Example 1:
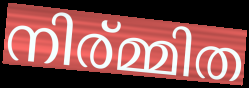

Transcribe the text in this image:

നിര്മ്മിത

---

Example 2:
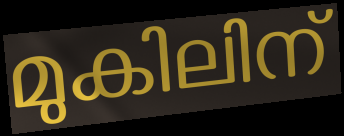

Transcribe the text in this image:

മുകിലിന്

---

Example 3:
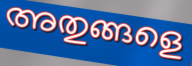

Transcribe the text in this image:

അതുങ്ങളെ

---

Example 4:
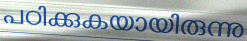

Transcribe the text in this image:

പഠിക്കുകയായിരുന്നു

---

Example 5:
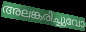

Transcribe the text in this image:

അലങ്കരിച്ചുവോ